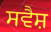
ਸਵੈਸ਼